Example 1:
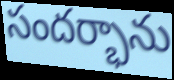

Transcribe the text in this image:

సందర్భాను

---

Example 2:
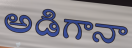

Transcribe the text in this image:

అడిగానా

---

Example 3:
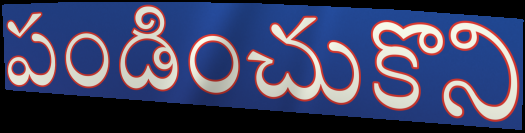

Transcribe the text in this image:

పండించుకొని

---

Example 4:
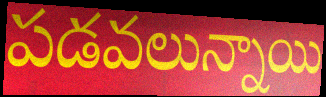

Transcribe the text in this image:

పడవలున్నాయి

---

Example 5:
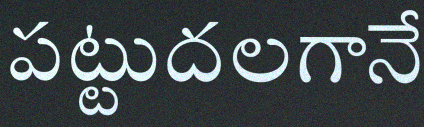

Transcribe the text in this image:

పట్టుదలగానే